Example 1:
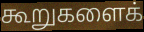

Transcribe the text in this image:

கூறுகளைக்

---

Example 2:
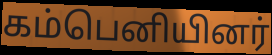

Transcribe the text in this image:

கம்பெனியினர்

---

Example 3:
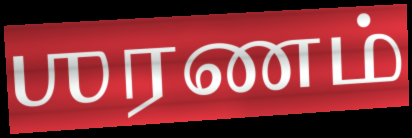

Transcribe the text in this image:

ஶரணம்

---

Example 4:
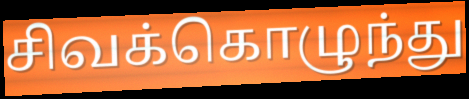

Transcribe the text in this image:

சிவக்கொழுந்து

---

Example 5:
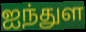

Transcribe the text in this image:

ஐந்துள